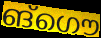
ങ്ഗൌ